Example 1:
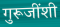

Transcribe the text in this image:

गुरूजींशी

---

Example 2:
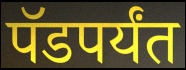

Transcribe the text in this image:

पॅडपर्यंत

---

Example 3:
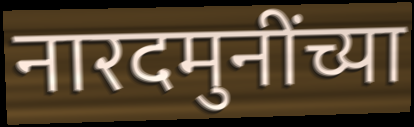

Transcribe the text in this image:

नारदमुनींच्या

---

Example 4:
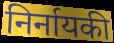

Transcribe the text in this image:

निर्नायकी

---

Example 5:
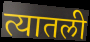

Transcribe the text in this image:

त्यातली